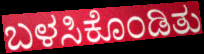
ಬಳಸಿಕೊಂಡಿತು